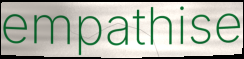
empathise